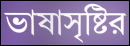
ভাষাসৃষ্টির